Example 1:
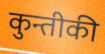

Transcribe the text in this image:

कुन्तीकी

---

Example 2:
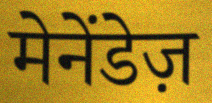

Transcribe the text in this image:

मेनेंडेज़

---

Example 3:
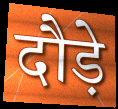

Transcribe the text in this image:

दौड़े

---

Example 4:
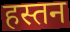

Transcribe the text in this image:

हस्तन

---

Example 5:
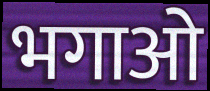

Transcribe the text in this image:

भगाओ